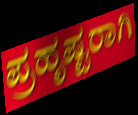
ಪ್ರಹೃಷ್ಟರಾಗಿ